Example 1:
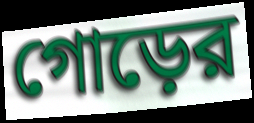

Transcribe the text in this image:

গোড়ের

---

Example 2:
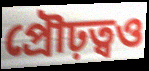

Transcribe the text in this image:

প্রৌঢ়ত্বও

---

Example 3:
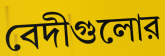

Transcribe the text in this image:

বেদীগুলোর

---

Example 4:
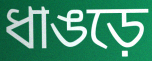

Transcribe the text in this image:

ধাঙড়ে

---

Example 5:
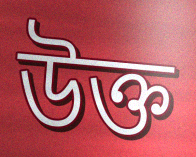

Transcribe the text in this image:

উক্ত